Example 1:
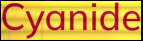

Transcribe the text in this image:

Cyanide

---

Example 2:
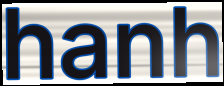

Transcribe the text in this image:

hanh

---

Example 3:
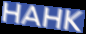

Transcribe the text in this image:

HAHK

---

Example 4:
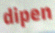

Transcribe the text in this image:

dipen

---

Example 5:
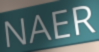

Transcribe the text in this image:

NAER